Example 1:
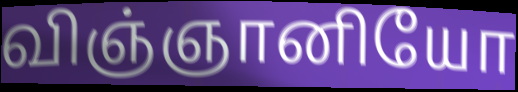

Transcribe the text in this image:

விஞ்ஞானியோ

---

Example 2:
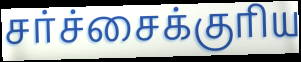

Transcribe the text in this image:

சர்ச்சைக்குரிய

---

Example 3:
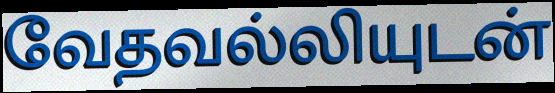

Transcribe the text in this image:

வேதவல்லியுடன்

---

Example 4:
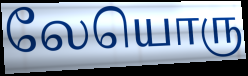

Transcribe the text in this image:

லேயொரு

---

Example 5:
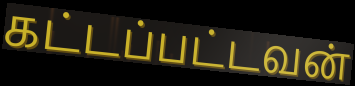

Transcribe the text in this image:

கட்டப்பட்டவன்